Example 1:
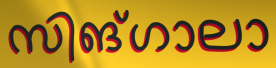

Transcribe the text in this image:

സിങ്ഗാലാ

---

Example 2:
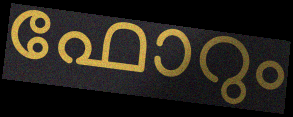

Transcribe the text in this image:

ഫോറും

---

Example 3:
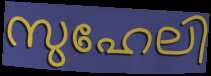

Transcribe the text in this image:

സുഹേലി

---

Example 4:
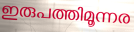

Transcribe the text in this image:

ഇരുപത്തിമൂന്നര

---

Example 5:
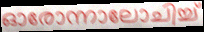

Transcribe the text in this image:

ഓരോന്നാലോചിച്ച്